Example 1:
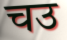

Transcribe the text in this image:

चउ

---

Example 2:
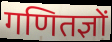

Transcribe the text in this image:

गणितज्ञों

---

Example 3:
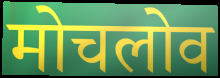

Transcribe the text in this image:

मोचलोव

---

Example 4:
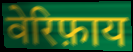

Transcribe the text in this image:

वेरिफ़ाय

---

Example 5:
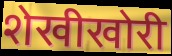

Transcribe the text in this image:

शेखीखोरी